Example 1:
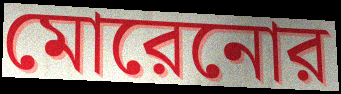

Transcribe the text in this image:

মোরেনোর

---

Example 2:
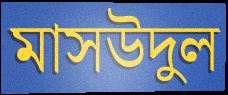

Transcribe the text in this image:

মাসউদুল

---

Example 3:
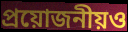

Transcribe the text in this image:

প্রয়োজনীয়ও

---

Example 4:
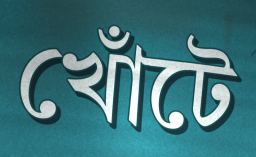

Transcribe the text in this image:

খোঁটে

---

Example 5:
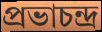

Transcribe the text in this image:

প্রভাচন্দ্র